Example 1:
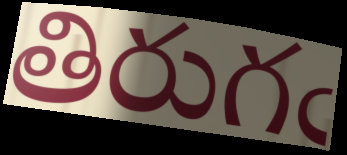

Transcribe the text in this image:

తిరుగఁ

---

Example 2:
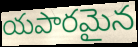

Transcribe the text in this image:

యపారమైన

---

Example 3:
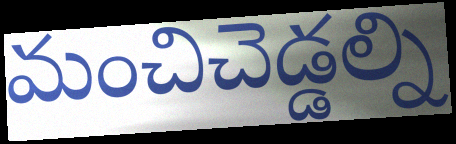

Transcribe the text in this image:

మంచిచెడ్డల్ని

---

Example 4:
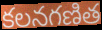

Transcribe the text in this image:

కలనగణిత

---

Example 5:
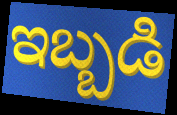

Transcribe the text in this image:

ఇబ్బడి